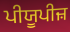
ਪੀਯੂਪੀਜ਼